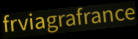
frviagrafrance